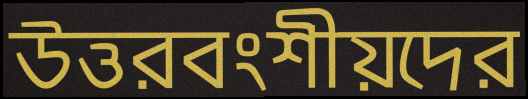
উত্তরবংশীয়দের